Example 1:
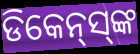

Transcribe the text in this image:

ଡିକେନ୍‌ସ୍‌ଙ୍କ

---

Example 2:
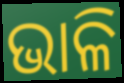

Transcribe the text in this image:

ଭାଳି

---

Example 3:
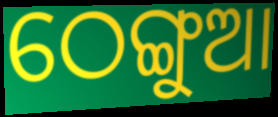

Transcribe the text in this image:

ଠେଙ୍ଗୁଆ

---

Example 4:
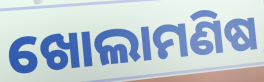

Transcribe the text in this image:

ଖୋଲାମଣିଷ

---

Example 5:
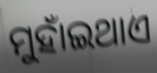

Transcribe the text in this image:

ମୁହାଁଇଥାଏ